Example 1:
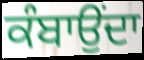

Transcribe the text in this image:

ਕੰਬਾਉਂਦਾ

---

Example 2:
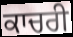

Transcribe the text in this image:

ਕਾਚਰੀ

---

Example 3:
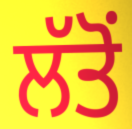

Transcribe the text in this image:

ਲੱਤੋਂ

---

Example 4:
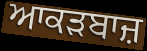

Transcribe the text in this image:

ਆਕੜਬਾਜ਼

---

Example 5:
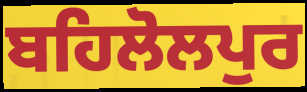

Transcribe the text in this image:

ਬਹਿਲੋਲਪੁਰ